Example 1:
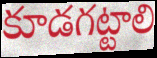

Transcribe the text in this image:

కూడగట్టాలి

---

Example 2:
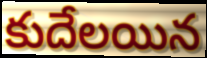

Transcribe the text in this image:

కుదేలయిన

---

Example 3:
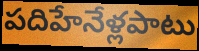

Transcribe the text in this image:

పదిహేనేళ్లపాటు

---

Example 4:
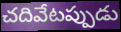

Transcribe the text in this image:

చదివేటప్పుడు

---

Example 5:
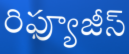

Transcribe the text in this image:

రిఫ్యూజీస్